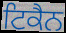
ਟਿਕੈਨ